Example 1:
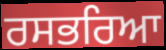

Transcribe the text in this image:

ਰਸਭਰਿਆ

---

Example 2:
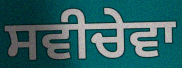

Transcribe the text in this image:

ਸਵੀਚੇਵਾ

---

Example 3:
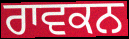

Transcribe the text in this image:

ਰਾਵਕਨ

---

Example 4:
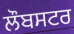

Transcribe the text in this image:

ਲੌਬਸਟਰ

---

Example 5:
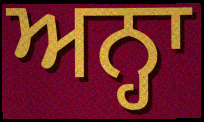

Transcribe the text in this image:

ਅਨ੍ਹਾ